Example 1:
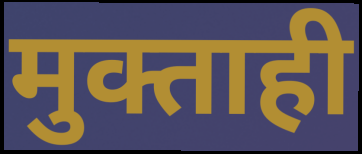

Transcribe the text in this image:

मुक्ताही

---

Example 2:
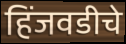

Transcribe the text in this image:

हिंजवडीचे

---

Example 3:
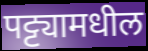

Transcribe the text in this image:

पट्ट्यामधील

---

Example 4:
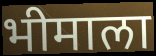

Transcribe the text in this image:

भीमाला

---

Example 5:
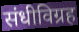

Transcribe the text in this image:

संधीविग्रह